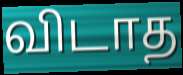
விடாத